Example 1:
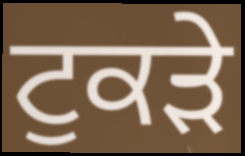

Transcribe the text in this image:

ਟੁਕੜੇ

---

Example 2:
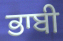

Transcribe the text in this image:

ਭਾਬੀ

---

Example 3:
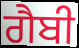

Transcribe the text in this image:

ਗੈਬੀ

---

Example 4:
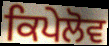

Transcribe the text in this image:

ਕਿਪੇਲੋਵ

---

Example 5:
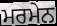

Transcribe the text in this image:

ਮਰਮੇਨ